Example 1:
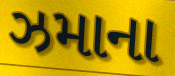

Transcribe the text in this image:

ઝમાના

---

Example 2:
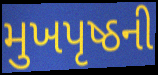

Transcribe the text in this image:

મુખપૃષ્ઠની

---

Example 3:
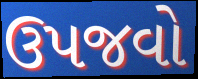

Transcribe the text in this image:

ઉપજવો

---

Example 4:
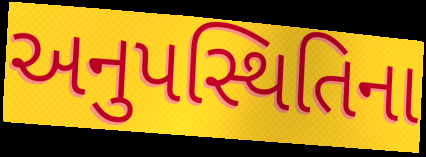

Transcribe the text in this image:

અનુપસ્થિતિના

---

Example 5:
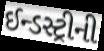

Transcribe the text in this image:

ઈન્ડસ્ટ્રીની